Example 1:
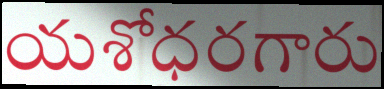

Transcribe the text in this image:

యశోధరగారు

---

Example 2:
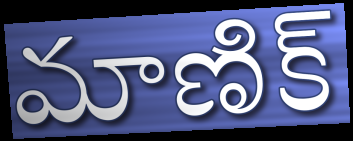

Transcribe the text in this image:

మాణిక్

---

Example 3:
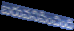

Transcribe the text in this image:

బరువనిపించింది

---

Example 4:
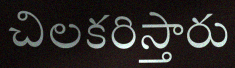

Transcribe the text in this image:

చిలకరిస్తారు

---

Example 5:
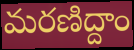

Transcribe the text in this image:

మరణిద్దాం